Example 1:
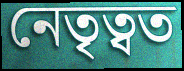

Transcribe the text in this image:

নেতৃত্বত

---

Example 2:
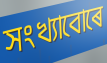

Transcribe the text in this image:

সংখ্যাবোৰে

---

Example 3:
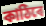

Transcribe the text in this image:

কাঠিৰে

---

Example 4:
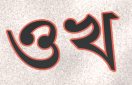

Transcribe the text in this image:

ওখ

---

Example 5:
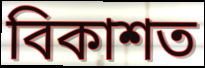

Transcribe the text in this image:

বিকাশত